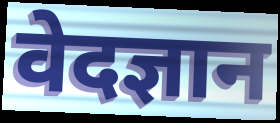
वेदज्ञान